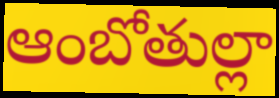
ఆంబోతుల్లా